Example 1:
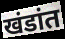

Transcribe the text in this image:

खंडांत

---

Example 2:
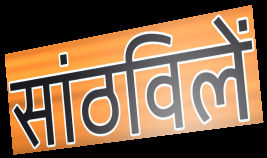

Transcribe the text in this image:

सांठविलें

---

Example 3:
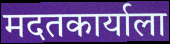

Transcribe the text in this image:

मदतकार्याला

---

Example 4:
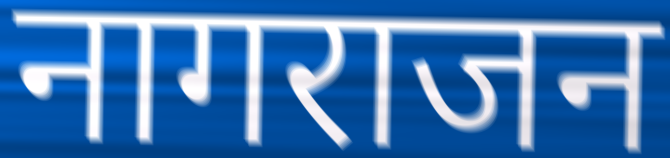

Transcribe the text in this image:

नागराजन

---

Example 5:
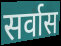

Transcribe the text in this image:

सर्वास